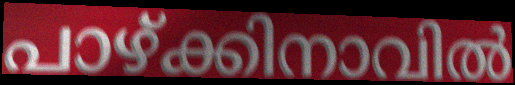
പാഴ്ക്കിനാവിൽ